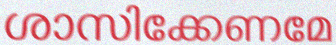
ശാസിക്കേണമേ